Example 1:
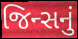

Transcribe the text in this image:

જિન્સનું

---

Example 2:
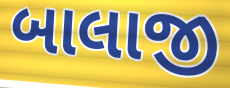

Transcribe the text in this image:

બાલાજી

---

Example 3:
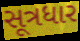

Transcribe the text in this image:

સૂત્રધાર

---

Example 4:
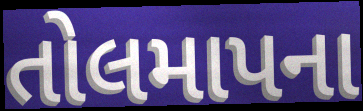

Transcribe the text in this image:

તોલમાપના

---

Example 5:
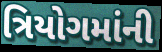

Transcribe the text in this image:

ત્રિયોગમાંની